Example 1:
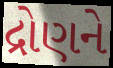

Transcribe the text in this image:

દ્રોણને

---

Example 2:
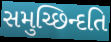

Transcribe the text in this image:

સમુચ્છિન્દતિ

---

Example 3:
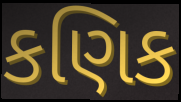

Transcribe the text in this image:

કણિક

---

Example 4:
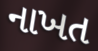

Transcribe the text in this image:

નાખત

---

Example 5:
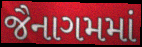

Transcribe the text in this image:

જૈનાગમમાં